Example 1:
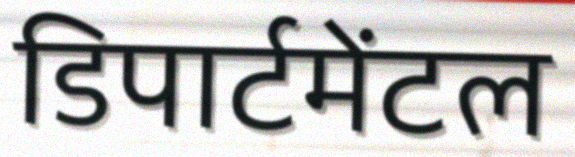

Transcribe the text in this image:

डिपार्टमेंटल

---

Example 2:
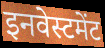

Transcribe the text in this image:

इनवेस्टमेंट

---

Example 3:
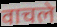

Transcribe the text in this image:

वाचले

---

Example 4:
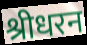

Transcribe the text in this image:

श्रीधरन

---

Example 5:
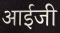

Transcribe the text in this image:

आईजी